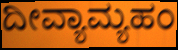
ದೀವ್ಯಾಮ್ಯಹಂ